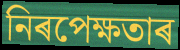
নিৰপেক্ষতাৰ